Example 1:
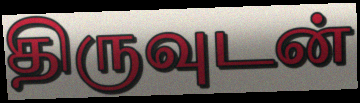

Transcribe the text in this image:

திருவுடன்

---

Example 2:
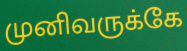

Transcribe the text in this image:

முனிவருக்கே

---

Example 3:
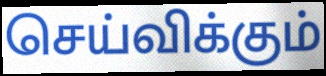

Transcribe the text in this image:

செய்விக்கும்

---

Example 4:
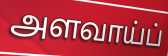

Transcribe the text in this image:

அளவாய்ப்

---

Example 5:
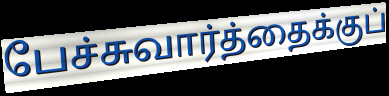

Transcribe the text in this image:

பேச்சுவார்த்தைக்குப்